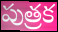
పుత్రక